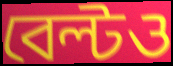
বেল্টও